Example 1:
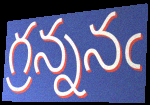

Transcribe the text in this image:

గ్రన్ననఁ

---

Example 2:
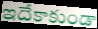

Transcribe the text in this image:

ఇదేకాకుండా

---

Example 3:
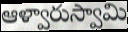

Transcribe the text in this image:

ఆళ్వారుస్వామి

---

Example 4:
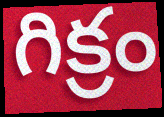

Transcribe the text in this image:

గిక్రం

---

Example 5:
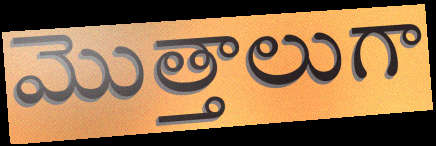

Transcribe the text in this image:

మొత్తాలుగా